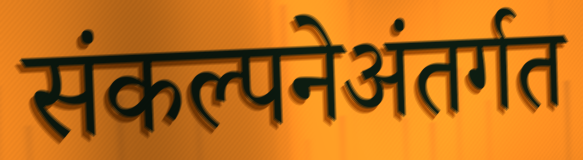
संकल्पनेअंतर्गत